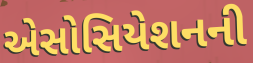
એસોસિયેશનની